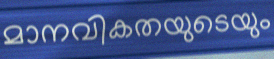
മാനവികതയുടെയും